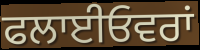
ਫਲਾਈਓਵਰਾਂ